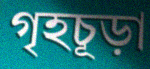
গৃহচূড়া